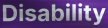
Disability